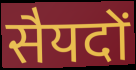
सैयदों